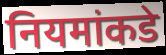
नियमांकडे